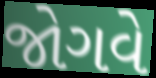
જોગવે